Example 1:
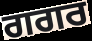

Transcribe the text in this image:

ਗਗਰ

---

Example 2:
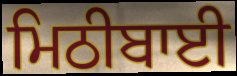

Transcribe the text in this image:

ਮਿਠੀਬਾਈ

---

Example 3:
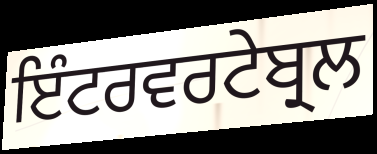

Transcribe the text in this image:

ਇੰਟਰਵਰਟੇਬ੍ਰਲ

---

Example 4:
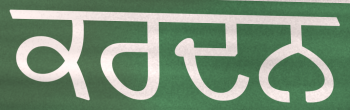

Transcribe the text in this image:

ਕਰਦਨ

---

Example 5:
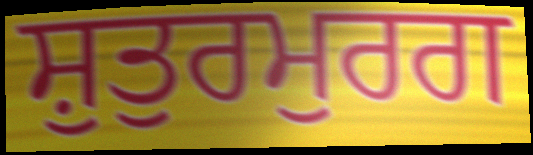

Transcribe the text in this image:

ਸ਼ੁਤੁਰਮੁਰਗ